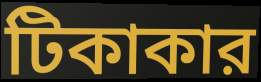
টিকাকার